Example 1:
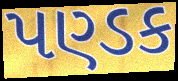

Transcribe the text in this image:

પણ્ડક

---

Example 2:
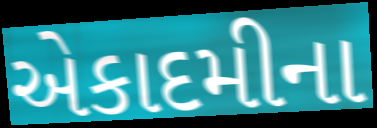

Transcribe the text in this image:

એકાદમીના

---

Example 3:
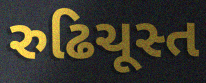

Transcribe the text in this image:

રુઢિચૂસ્ત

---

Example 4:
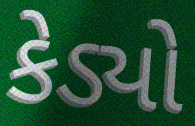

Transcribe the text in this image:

કેડ્યો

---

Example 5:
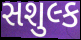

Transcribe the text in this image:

સશુલ્ક